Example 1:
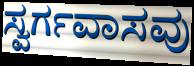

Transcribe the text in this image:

ಸ್ವರ್ಗವಾಸವು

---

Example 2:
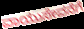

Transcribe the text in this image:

ವಾಯುಸೇವನೆಗೆ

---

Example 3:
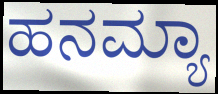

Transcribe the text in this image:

ಹನಮ್ಯಾ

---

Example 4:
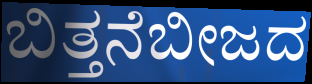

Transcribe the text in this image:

ಬಿತ್ತನೆಬೀಜದ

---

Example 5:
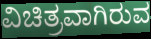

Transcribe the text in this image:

ವಿಚಿತ್ರವಾಗಿರುವ